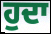
ਹੁਦਾ